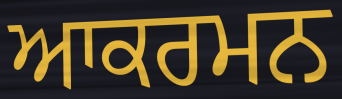
ਆਕਰਮਨ